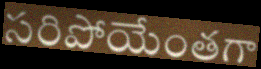
సరిపోయేంతగా